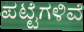
ಪಟ್ಟೆಗಳಿವೆ